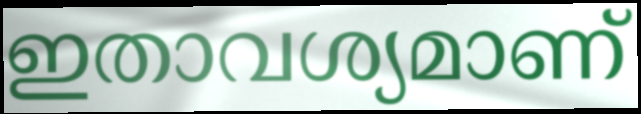
ഇതാവശ്യമാണ്